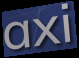
axi